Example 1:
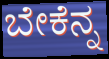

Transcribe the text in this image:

ಬೇಕೆನ್ನ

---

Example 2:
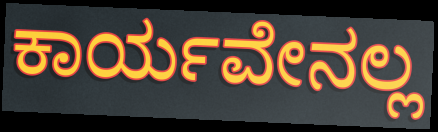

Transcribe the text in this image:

ಕಾರ್ಯವೇನಲ್ಲ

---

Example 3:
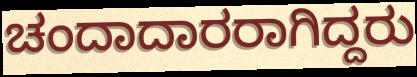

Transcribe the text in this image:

ಚಂದಾದಾರರಾಗಿದ್ದರು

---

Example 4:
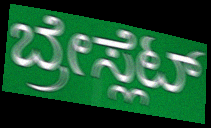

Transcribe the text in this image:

ಬ್ರೇಸ್ಲೆಟ್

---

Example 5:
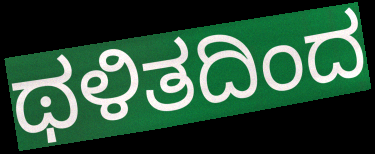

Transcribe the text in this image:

ಥಳಿತದಿಂದ